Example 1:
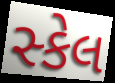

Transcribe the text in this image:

સ્કેલ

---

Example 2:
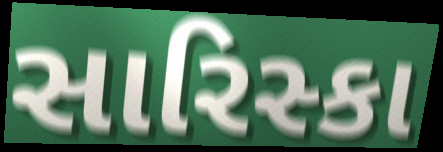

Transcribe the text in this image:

સારિસ્કા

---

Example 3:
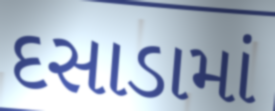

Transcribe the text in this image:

દસાડામાં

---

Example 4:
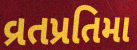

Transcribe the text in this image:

વ્રતપ્રતિમા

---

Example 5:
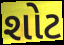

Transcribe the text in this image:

શોટ